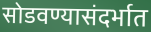
सोडवण्यासंदर्भात